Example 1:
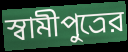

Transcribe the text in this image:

স্বামীপুত্রের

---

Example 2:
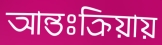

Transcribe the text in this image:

আন্তঃক্রিয়ায়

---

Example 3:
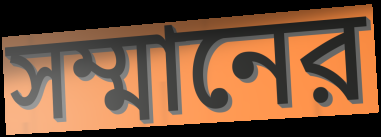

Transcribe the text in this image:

সম্মানের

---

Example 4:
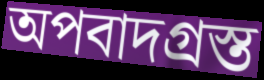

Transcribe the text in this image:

অপবাদগ্রস্ত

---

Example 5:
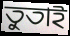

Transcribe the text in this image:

তুতাই